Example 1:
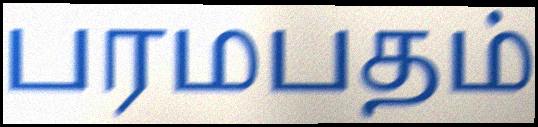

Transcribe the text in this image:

பரமபதம்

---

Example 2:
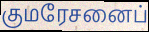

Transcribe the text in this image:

குமரேசனைப்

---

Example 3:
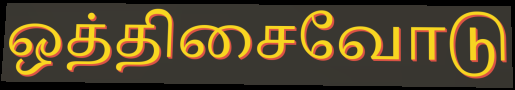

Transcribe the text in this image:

ஒத்திசைவோடு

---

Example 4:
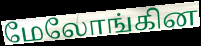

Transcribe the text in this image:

மேலோங்கின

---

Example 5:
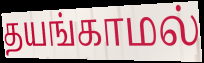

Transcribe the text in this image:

தயங்காமல்